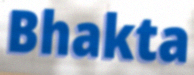
Bhakta